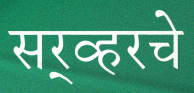
सर्व्हरचे